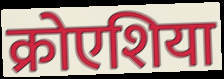
क्रोएशिया